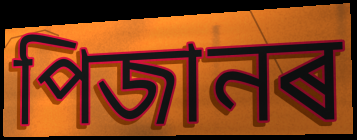
পিজানৰ